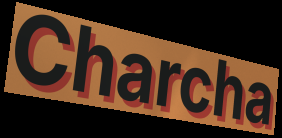
Charcha